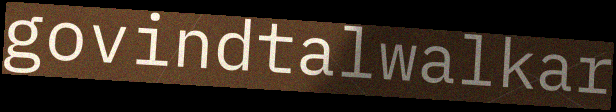
govindtalwalkar